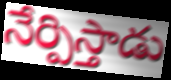
నేర్పిస్తాడు